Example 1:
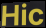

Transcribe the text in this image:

Hic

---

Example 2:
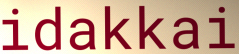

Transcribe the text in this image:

idakkai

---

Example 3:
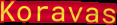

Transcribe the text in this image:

Koravas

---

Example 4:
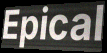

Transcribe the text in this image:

Epical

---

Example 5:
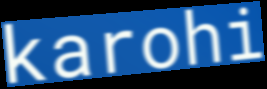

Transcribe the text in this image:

karohi